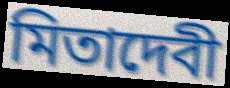
মিতাদেবী